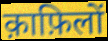
क़ाफ़िलों